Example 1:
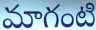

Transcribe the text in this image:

మాగంటి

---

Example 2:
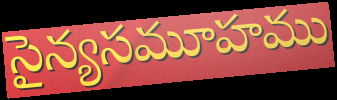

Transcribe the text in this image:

సైన్యసమూహము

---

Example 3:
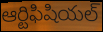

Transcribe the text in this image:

ఆర్టిఫిషియల్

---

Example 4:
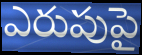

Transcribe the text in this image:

ఎరుపుపై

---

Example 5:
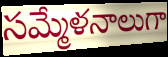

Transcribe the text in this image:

సమ్మేళనాలుగా